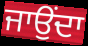
ਜਾਉਂਦਾ